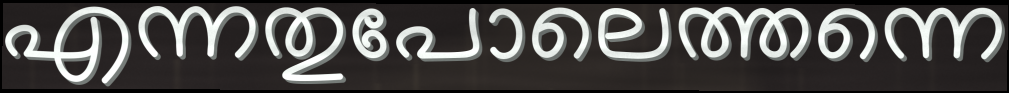
എന്നതുപോലെത്തന്നെ